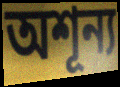
অশূন্য